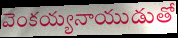
వెంకయ్యనాయుడుతో